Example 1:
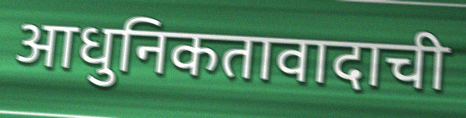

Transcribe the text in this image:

आधुनिकतावादाची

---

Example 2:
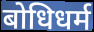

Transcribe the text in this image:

बोधिधर्म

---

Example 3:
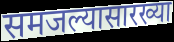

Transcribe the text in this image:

समजल्यासारख्या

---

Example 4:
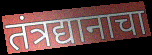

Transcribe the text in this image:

तंत्रद्यानाचा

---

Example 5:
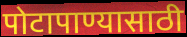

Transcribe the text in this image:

पोटापाण्यासाठी